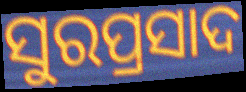
ସୁରପ୍ରସାଦ